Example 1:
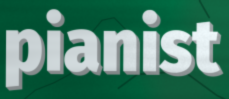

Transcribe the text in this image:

pianist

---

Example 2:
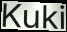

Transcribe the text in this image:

Kuki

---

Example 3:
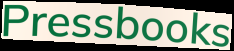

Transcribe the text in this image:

Pressbooks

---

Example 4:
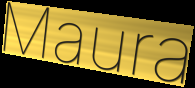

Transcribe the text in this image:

Maura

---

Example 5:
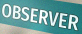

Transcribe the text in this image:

OBSERVER